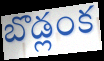
బొడ్లంక